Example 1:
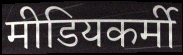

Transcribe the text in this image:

मीडियकर्मी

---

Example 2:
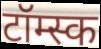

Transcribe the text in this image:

टॉम्स्क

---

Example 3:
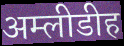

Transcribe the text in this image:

अम्लीडीह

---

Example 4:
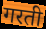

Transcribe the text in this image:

गरती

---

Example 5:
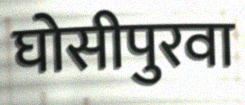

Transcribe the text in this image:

घोसीपुरवा